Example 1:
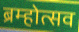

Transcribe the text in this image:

ब्रम्होत्सव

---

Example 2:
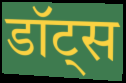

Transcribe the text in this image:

डॉट्स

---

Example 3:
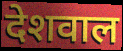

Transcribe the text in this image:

देशवाल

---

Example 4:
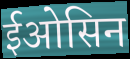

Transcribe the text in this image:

ईओसिन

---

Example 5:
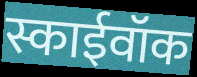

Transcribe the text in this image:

स्काईवॉक